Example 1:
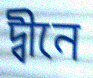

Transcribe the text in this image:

দ্বীনে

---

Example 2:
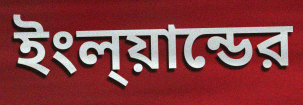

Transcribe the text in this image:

ইংল্য়ান্ডের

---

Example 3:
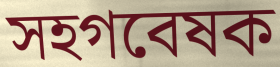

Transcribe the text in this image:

সহগবেষক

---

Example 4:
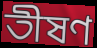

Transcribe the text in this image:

তীষণ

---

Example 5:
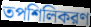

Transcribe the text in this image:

তপশিলিকরণ